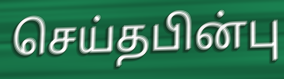
செய்தபின்பு